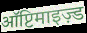
ऑप्टिमाइज़्ड